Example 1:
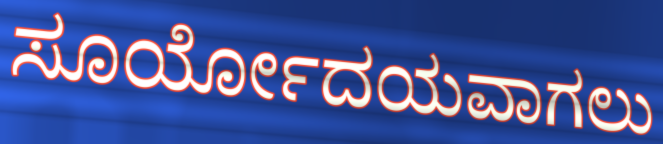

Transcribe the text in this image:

ಸೂರ್ಯೋದಯವಾಗಲು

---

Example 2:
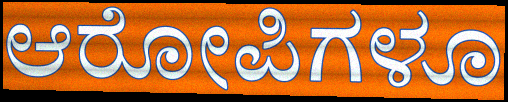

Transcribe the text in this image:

ಆರೋಪಿಗಳೂ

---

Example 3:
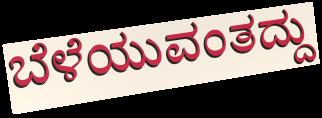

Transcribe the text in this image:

ಬೆಳೆಯುವಂತದ್ದು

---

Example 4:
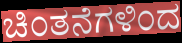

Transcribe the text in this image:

ಚಿಂತನೆಗಳಿಂದ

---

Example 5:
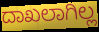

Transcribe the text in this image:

ದಾಖಲಾಗಿಲ್ಲ